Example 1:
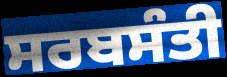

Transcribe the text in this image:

ਸਰਬਸੰਤੀ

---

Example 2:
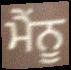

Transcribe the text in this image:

ਮੈਂਨੂ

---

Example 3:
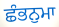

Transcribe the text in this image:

ਛੰਭਨੁਮਾ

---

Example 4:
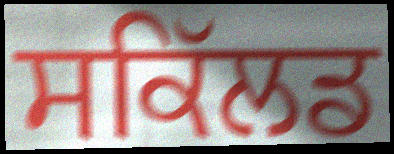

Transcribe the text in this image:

ਸਕਿੱਲਡ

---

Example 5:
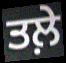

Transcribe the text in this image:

ਤਲ਼ੇ